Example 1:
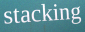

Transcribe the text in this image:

stacking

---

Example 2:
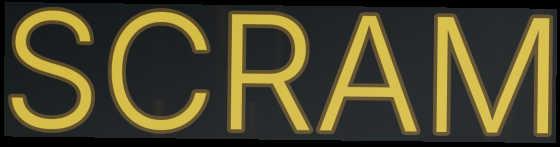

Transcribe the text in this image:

SCRAM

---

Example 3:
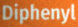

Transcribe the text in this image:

Diphenyl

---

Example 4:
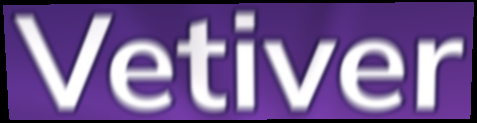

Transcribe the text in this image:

Vetiver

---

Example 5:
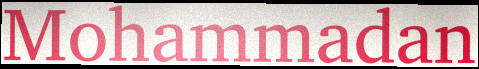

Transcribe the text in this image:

Mohammadan